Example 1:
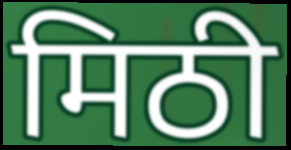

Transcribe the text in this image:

मिठी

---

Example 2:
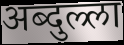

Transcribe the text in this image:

अब्दुल्ला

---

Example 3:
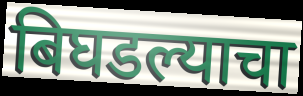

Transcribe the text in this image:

बिघडल्याचा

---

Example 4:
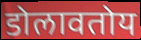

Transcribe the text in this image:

डोलावतोय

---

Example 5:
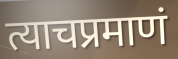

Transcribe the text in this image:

त्याचप्रमाणं